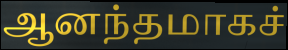
ஆனந்தமாகச்